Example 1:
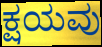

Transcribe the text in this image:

ಕ್ಷಯವು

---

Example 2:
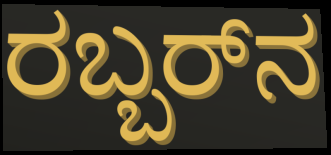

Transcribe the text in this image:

ರಬ್ಬರ್‌ನ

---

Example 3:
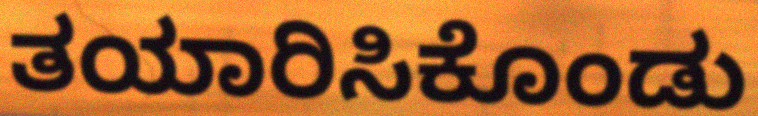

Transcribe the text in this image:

ತಯಾರಿಸಿಕೊಂಡು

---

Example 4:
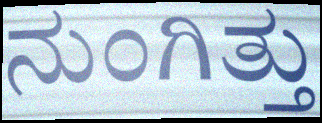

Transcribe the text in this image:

ನುಂಗಿತ್ತು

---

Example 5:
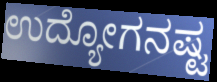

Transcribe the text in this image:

ಉದ್ಯೋಗನಷ್ಟ